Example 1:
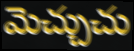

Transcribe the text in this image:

మెచ్చుచు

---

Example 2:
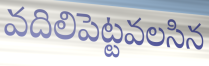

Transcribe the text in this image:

వదిలిపెట్టవలసిన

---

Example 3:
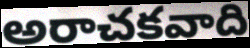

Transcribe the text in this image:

అరాచకవాది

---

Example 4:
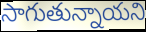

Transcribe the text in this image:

సాగుతున్నాయని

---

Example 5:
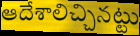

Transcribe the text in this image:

ఆదేశాలిచ్చినట్టు